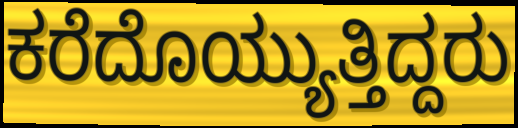
ಕರೆದೊಯ್ಯುತ್ತಿದ್ದರು